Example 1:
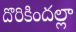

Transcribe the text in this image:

దొరికిందల్లా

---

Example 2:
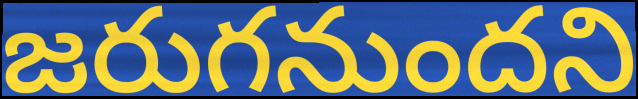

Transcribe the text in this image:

జరుగనుందని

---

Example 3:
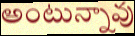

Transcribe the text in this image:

అంటున్నావు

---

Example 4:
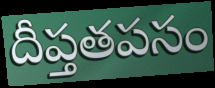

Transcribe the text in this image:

దీప్తతపసం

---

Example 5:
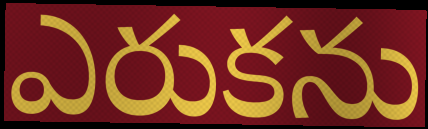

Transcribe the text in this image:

ఎరుకను